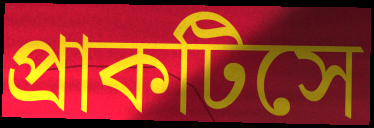
প্রাকটিসে